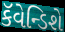
કૅવેન્ડિશે